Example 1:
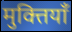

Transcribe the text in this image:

मुक्तियाँ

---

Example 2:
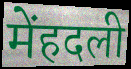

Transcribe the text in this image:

मेंहदली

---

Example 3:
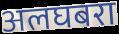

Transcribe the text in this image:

अलघबरा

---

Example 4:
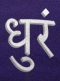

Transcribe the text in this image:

धुरं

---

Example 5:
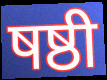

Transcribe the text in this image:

षष्ठी